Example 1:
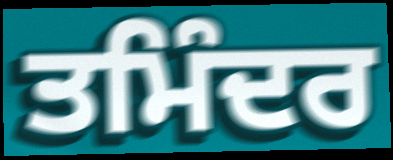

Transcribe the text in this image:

ਤਮਿੰਦਰ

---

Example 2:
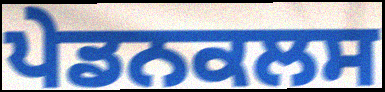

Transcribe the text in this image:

ਪੇਡਨਕਲਸ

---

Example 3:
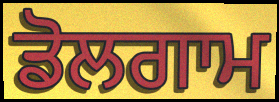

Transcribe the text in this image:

ਡੋਲਗਾਮ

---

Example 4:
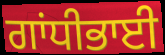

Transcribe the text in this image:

ਗਾਂਧੀਭਾਈ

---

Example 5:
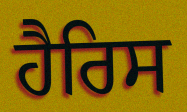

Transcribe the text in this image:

ਹੈਰਿਸ